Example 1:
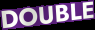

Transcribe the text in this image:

DOUBLE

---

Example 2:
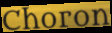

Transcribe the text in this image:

Choron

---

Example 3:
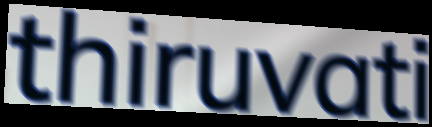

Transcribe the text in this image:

thiruvati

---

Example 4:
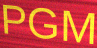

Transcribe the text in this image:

PGM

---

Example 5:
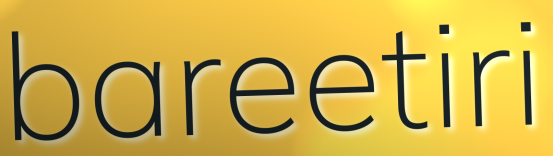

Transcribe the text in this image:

bareetiri